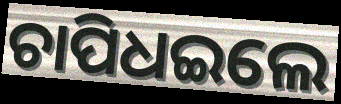
ଚାପିଧଇଲେ